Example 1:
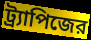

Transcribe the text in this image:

ট্র্যাপিজের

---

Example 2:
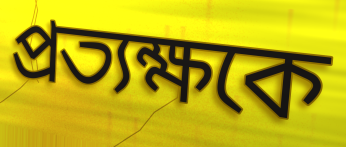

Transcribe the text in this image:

প্রত্যক্ষকে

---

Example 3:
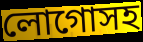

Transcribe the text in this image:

লোগোসহ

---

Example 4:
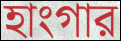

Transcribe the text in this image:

হাংগার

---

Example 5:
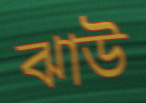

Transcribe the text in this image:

ঝাউ